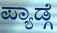
ಪ್ಯಾಡ್ಗೆ